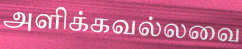
அளிக்கவல்லவை